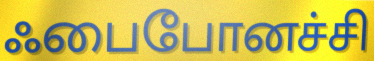
ஃபைபோனச்சி